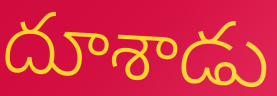
దూశాడు